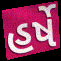
હર્ષે